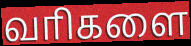
வரிகளை